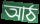
আঠ